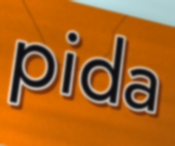
pida